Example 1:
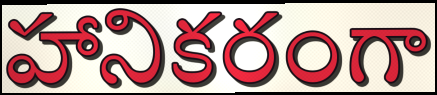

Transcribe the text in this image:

హానికరంగా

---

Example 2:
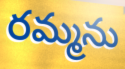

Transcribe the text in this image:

రమ్మను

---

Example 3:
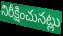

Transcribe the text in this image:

నిరీక్షించునట్లు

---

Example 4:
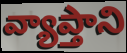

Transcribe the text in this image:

వ్యాప్తాని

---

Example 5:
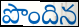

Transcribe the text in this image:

పొందిన